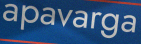
apavarga